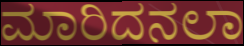
ಮಾರಿದನಲಾ